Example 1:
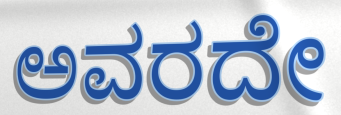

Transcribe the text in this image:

ಅವರದೇ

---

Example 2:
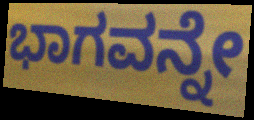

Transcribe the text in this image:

ಭಾಗವನ್ನೇ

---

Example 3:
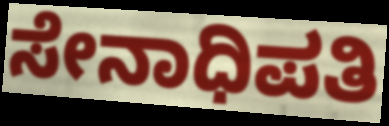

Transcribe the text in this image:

ಸೇನಾಧಿಪತಿ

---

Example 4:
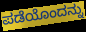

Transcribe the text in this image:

ಪಡೆಯೊಂದನ್ನು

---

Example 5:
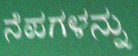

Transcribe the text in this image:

ನೆಪಗಳನ್ನು